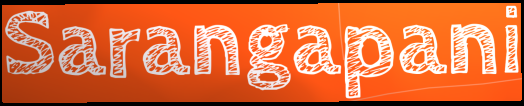
Sarangapani